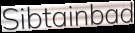
Sibtainbad